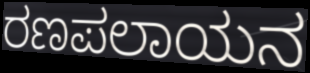
ರಣಪಲಾಯನ